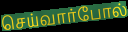
செய்வார்போல்